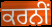
ਕਰਨੀਂ